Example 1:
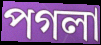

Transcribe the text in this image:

পগলা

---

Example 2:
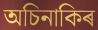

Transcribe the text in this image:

অচিনাকিৰ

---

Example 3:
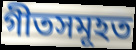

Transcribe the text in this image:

গীতসমূহত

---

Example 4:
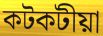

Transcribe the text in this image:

কটকটীয়া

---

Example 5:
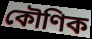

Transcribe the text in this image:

কৌণিক